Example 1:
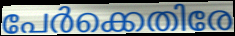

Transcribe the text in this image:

പേർക്കെതിരേ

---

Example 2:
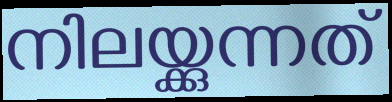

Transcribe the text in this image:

നിലയ്ക്കുന്നത്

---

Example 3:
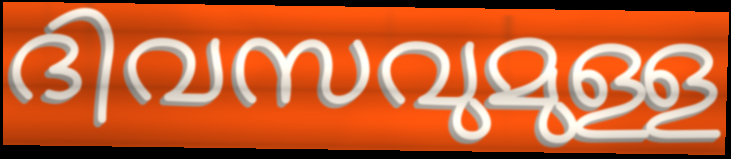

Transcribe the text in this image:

ദിവസവുമുള്ള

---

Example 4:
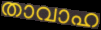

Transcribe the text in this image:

താവാഹ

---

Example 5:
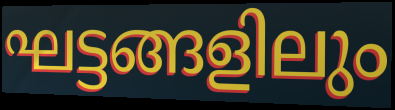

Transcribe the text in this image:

ഘട്ടങ്ങളിലും